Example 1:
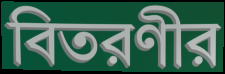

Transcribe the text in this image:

বিতরণীর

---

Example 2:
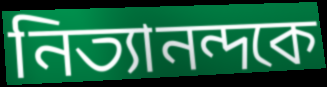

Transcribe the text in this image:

নিত্যানন্দকে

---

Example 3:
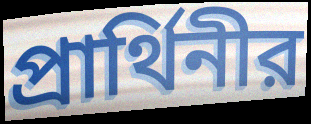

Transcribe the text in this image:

প্রার্থিনীর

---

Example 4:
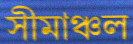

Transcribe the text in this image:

সীমাঞ্চল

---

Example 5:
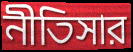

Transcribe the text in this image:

নীতিসার